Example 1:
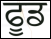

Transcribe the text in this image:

ਫੂਡ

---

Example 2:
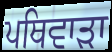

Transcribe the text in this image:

ਪਥਿਵਾੜਾ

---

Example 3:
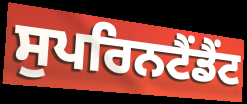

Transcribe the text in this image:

ਸੁਪਰਿਨਟੈਂਡੈਂਟ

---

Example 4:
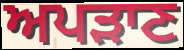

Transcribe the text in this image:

ਅਪੜਾਣ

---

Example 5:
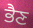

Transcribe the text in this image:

ਭੈਣ